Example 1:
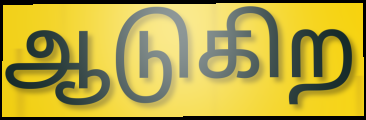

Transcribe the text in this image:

ஆடுகிற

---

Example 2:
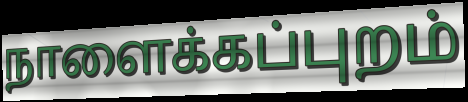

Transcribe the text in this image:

நாளைக்கப்புறம்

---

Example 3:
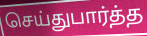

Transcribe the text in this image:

செய்துபார்த்த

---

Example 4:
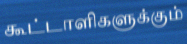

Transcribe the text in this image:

கூட்டாளிகளுக்கும்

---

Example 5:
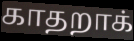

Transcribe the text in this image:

காதறாக்